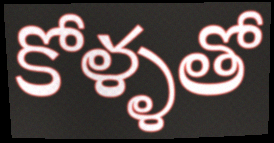
కోళ్ళతో